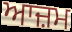
ਆਜ਼ਮ